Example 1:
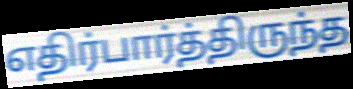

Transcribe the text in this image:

எதிர்பார்த்திருந்த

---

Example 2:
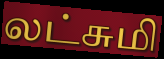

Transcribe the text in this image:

லட்சுமி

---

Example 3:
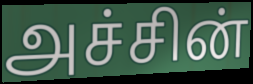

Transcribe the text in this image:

அச்சின்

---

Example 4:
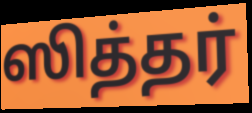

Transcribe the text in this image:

ஸித்தர்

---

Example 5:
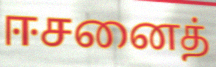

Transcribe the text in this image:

ஈசனைத்